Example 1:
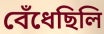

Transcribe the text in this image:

বেঁধেছিলি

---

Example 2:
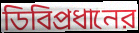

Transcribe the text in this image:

ডিবিপ্রধানের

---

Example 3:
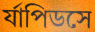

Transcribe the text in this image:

র্যাপিডসে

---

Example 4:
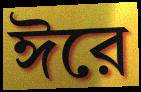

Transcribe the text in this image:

ঈরে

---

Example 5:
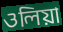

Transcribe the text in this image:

ওলিয়া